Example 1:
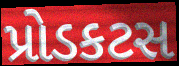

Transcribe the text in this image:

પ્રોડકટસ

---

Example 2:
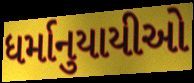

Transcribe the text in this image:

ધર્માનુયાયીઓ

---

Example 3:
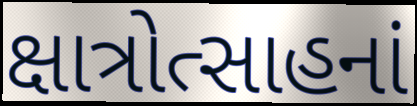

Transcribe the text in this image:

ક્ષાત્રોત્સાહનાં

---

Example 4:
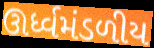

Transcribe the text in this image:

ઊર્ધ્વમંડળીય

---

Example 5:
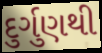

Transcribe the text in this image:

દુર્ગુણથી